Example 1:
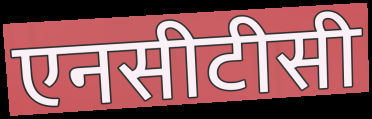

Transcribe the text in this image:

एनसीटीसी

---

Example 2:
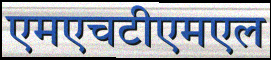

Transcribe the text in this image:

एमएचटीएमएल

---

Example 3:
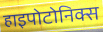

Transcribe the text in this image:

हाइपोटोनिक्स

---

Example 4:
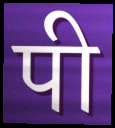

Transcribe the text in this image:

पी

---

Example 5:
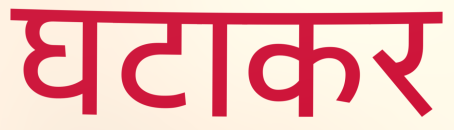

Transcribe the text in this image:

घटाकर